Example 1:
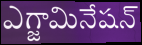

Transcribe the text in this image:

ఎగ్జామినేషన్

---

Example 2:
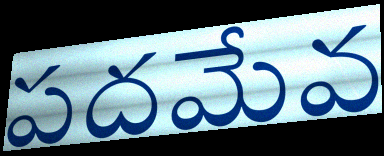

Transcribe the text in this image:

పదమేవ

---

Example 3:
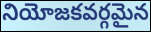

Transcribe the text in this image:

నియోజకవర్గమైన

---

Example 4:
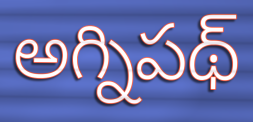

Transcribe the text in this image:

అగ్నిపథ్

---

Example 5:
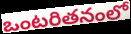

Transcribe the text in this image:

ఒంటరితనంలో